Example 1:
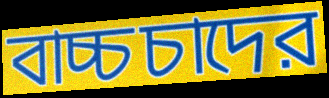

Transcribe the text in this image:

বাচ্চচাদের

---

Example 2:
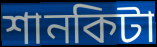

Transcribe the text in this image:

শানকিটা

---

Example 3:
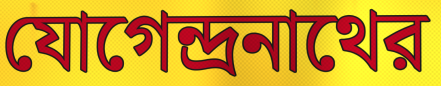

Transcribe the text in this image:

যোগেন্দ্রনাথের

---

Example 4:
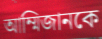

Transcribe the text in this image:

আম্মিজানকে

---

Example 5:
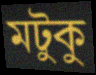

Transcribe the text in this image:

মটুকু